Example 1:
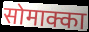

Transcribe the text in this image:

सोमाक्का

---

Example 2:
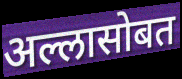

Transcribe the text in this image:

अल्लासोबत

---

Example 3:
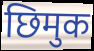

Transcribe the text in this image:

छिमुक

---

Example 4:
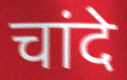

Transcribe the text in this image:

चांदे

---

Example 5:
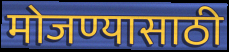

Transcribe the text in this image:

मोजण्यासाठी